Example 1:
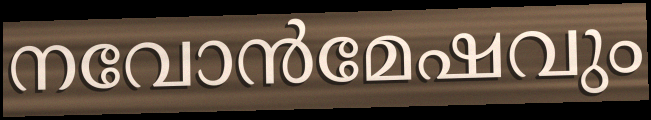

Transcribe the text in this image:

നവോൻമേഷവും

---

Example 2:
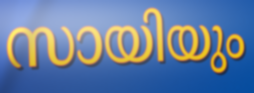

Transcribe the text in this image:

സായിയും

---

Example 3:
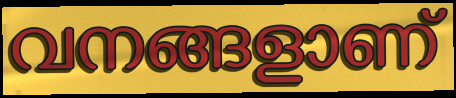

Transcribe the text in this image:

വനങ്ങളാണ്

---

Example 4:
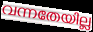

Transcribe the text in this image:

വന്നതേയില്ല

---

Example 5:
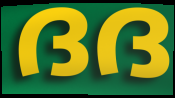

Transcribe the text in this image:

ദദ